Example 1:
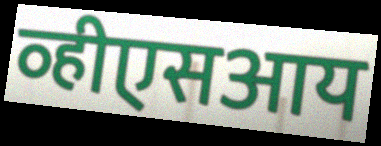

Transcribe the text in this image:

व्हीएसआय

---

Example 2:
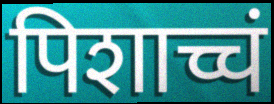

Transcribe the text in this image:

पिशाच्चं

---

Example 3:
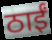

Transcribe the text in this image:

ठाईं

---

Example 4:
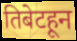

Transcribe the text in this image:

तिबेटहून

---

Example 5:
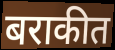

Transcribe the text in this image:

बराकीत